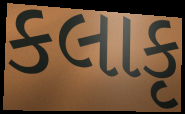
કલાકૃ